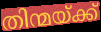
തിന്മയ്ക്ക്